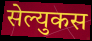
सेल्युकस